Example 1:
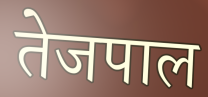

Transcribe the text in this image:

तेजपाल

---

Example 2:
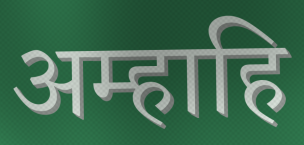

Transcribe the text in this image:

अम्हाहि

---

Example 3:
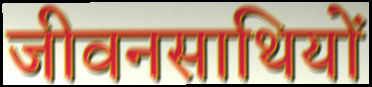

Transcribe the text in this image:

जीवनसाथियों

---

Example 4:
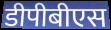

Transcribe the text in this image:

डीपीबीएस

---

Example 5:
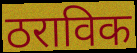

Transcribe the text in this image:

ठराविक